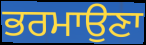
ਭਰਮਾਉਣਾ